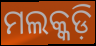
ମଲକ୍କଡ଼ି